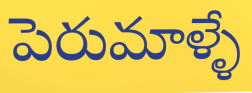
పెరుమాళ్ళే